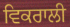
ਵਿਕਰਾਲੀ